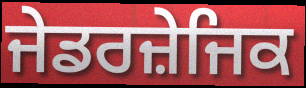
ਜੇਡਰਜ਼ੇਜਿਕ